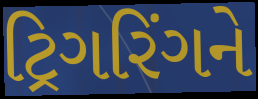
ટ્રિગરિંગને